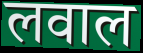
लवाल